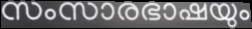
സംസാരഭാഷയും